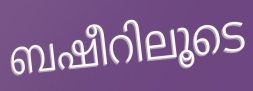
ബഷീറിലൂടെ